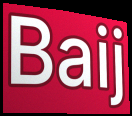
Baij